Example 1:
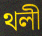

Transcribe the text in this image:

থলী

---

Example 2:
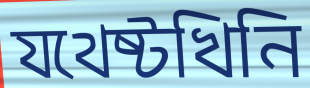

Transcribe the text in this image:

যথেষ্টখিনি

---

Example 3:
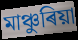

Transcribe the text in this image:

মাঞ্চুৰিয়া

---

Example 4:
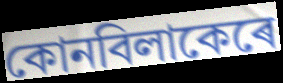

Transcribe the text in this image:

কোনবিলাকেৰে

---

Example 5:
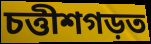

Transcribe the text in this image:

চত্তীশগড়ত